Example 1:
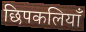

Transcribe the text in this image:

छिपकलियाँ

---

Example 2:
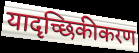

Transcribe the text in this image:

यादृच्छिकीकरण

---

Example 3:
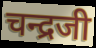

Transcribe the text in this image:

चन्द्रजी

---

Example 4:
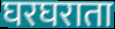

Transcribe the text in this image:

घरघराता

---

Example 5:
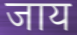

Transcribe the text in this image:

जाय